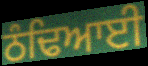
ਠੰਢਿਆਈ